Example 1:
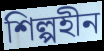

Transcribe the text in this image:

শিল্পহীন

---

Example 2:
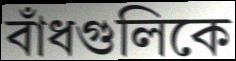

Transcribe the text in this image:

বাঁধগুলিকে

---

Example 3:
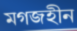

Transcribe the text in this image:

মগজহীন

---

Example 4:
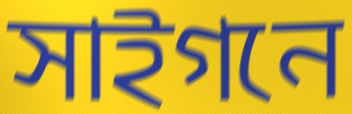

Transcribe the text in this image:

সাইগনে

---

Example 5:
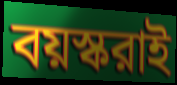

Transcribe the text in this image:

বয়স্করাই